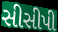
સીસીપી